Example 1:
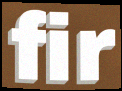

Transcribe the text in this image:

fir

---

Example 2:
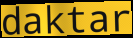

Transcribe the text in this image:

daktar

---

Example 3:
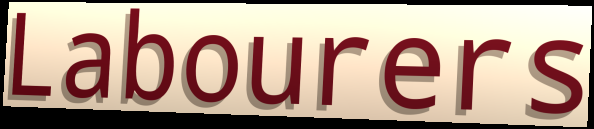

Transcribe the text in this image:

Labourers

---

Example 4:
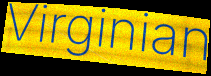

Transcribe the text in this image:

Virginian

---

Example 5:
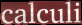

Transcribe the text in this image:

calculi